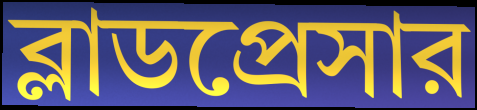
ব্লাডপ্রেসার